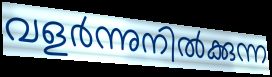
വളർന്നുനിൽക്കുന്ന